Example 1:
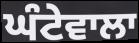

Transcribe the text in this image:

ਘੰਟੇਵਾਲਾ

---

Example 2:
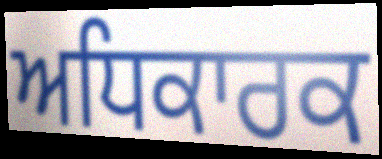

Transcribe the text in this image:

ਅਧਿਕਾਰਕ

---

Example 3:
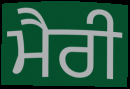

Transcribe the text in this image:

ਮੈਰੀ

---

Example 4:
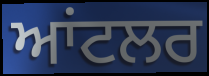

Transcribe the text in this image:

ਆਂਟਲਰ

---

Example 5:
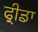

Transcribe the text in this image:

ਫ੍ਰੀਡਾ